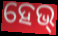
ହେଭ୍